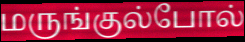
மருங்குல்போல்